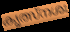
കൃത്സ്നശഃ